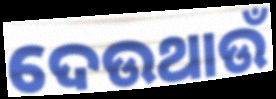
ଦେଉଥାଉଁ